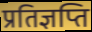
प्रतिज्ञप्ति